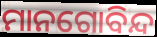
ମାନଗୋବିନ୍ଦ